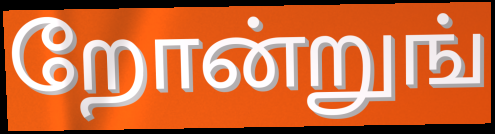
றோன்றுங்